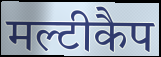
मल्‍टीकैप